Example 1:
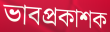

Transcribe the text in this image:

ভাবপ্রকাশক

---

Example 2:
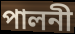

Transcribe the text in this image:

পালনী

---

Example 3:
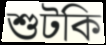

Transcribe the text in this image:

শুটকি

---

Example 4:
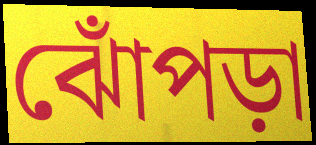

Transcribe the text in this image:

ঝোঁপড়া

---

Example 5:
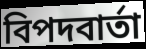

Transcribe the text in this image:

বিপদবার্তা